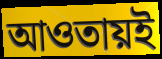
আওতায়ই